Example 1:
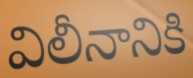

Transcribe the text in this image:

విలీనానికి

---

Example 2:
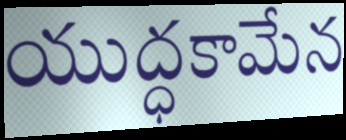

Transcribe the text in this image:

యుద్ధకామేన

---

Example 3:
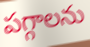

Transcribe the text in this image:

పగ్గాలను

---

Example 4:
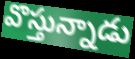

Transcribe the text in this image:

వొస్తున్నాడు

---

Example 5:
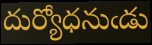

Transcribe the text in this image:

దుర్యోధనుఁడు